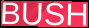
BUSH